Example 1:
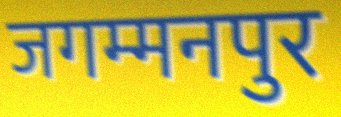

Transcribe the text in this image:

जगम्मनपुर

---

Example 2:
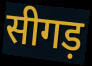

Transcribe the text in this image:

सीगड़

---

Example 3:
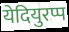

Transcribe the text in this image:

येदियुरप्प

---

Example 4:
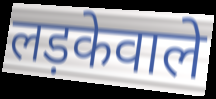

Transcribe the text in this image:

लड़केवाले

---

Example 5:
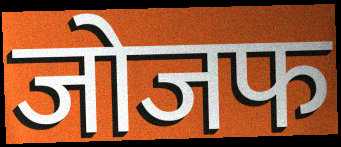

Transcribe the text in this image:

जोजफ